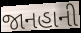
જાનહાની